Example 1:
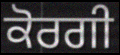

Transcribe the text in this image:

ਕੋਰਗੀ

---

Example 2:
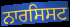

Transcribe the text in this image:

ਨਾਰਸਿਸਟ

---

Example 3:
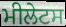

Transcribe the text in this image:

ਮੀਲੇਟਸ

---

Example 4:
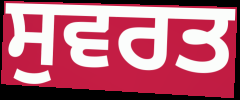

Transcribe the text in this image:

ਸੁਵਰਤ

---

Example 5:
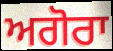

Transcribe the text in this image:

ਅਗੋਰਾ